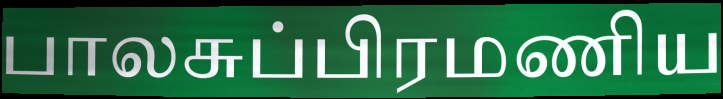
பாலசுப்பிரமணிய